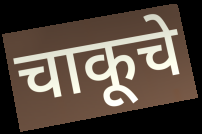
चाकूचे